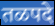
तळपदे